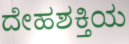
ದೇಹಶಕ್ತಿಯ